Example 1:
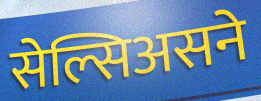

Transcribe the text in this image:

सेल्सिअसने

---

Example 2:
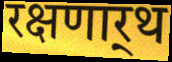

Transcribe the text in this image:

रक्षणार्थ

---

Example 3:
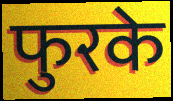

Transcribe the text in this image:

फुरके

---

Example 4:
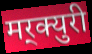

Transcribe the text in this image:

मर्क्युरी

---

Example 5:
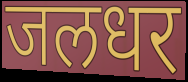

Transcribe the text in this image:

जलधर